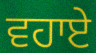
ਵਹਾਏ